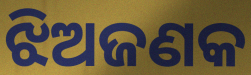
ଝିଅଜଣକ